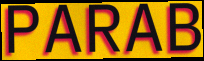
PARAB